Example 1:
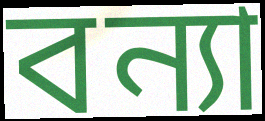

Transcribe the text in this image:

বন্যা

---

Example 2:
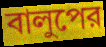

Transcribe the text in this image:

বালুপের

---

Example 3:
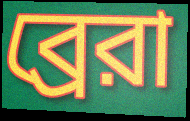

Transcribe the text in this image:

ব্রেরা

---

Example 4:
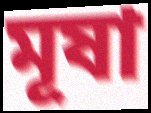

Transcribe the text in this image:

মূষা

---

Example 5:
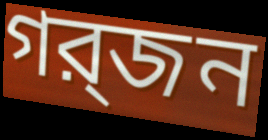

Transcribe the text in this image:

গর্‍জন